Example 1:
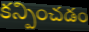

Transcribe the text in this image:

కన్పించడం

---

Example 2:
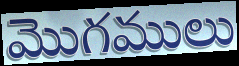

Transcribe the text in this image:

మొగములు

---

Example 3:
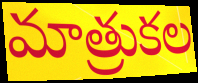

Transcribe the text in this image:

మాత్రుకల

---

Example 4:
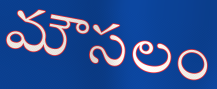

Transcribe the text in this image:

మౌసలం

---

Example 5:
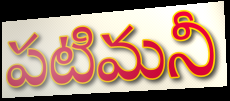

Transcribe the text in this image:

పటిమనీ